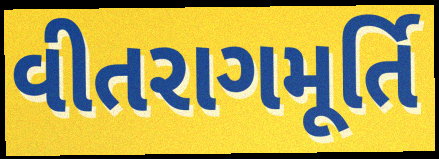
વીતરાગમૂર્તિ